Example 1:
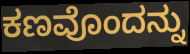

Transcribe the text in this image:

ಕಣವೊಂದನ್ನು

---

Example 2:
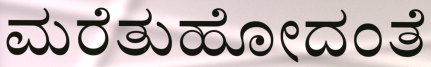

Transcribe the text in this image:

ಮರೆತುಹೋದಂತೆ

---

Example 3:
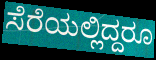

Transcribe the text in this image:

ಸೆರೆಯಲ್ಲಿದ್ದರೂ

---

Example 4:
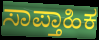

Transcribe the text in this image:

ಸಾಪ್ತಾಹಿಕ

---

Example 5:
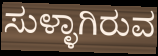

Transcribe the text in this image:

ಸುಳ್ಳಾಗಿರುವ